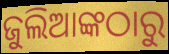
ଜୁଲିଆଙ୍କଠାରୁ